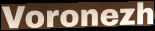
Voronezh